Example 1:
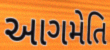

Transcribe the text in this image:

આગમેતિ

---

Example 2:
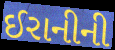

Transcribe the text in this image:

ઈરાનીની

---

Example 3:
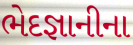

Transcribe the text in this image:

ભેદજ્ઞાનીના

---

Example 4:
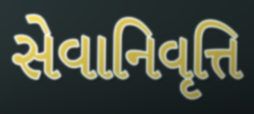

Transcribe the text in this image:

સેવાનિવૃત્તિ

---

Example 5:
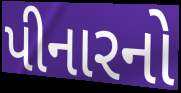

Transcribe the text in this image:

પીનારનો